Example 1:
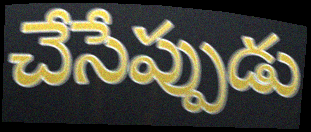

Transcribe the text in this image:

చేసేప్పుడు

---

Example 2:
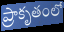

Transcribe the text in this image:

ప్రాకృతంలో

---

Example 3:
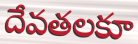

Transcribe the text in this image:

దేవతలకూ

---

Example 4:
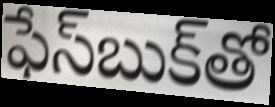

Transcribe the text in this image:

ఫేస్‌బుక్‌తో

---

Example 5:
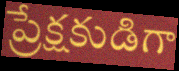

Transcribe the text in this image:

ప్రేక్షకుడిగా